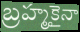
బ్రహ్మకైనా